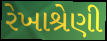
રેખાશ્રેણી